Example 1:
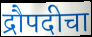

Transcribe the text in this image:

द्रौपदीचा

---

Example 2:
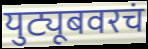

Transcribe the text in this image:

युट्यूबवरचं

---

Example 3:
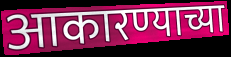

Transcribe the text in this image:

आकारण्याच्या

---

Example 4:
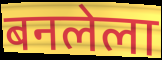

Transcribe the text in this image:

बनलेला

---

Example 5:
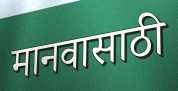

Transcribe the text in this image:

मानवासाठी